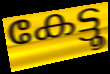
കേട്ടൂ